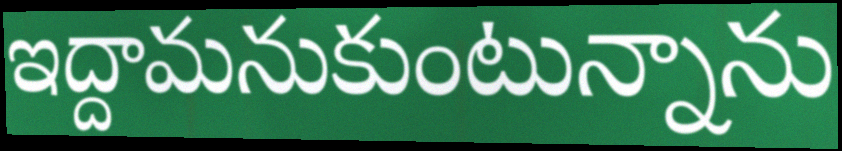
ఇద్దామనుకుంటున్నాను